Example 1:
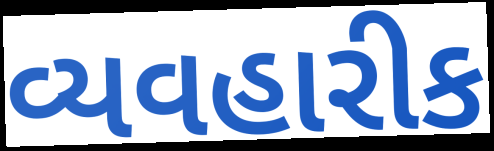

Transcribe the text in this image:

વ્યવહારીક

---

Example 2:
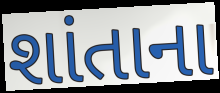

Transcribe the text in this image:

શાંતાના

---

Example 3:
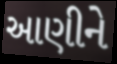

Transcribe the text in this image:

આણીને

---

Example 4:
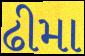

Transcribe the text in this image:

ઢીમા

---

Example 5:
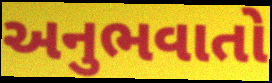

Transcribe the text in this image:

અનુભવાતો